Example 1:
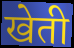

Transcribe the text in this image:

खेती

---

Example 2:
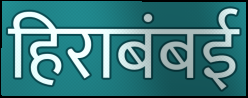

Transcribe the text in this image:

हिराबंबई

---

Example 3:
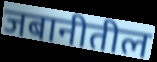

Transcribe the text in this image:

जबानीतील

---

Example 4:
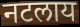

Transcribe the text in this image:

नटलाय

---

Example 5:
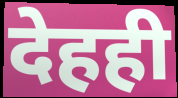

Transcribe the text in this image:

देहही